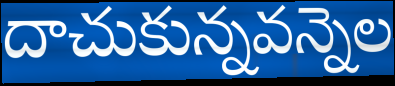
దాచుకున్నవన్నెల